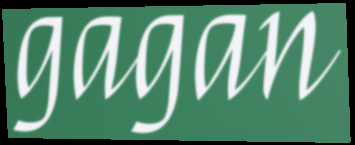
gagan